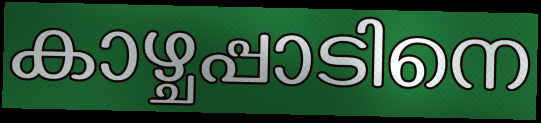
കാഴ്ചപ്പാടിനെ